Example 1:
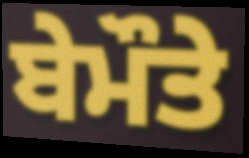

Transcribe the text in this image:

ਬੇਮੌਤੇ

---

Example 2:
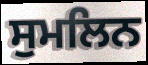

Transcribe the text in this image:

ਸੁਮਲਿਨ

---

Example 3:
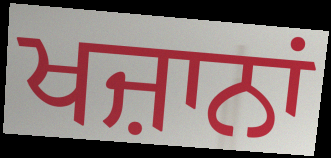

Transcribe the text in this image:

ਖਜ਼ਾਨਾਂ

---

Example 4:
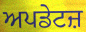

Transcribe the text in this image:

ਅਪਡੇਟਜ਼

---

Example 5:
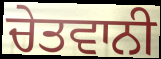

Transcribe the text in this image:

ਚੇਤਵਾਨੀ